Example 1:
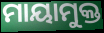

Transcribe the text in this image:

ମାୟାମୁକ୍ତ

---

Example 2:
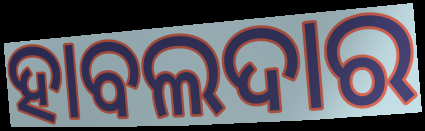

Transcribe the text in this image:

ହାବଲଦାର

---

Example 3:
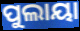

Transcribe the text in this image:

ପୁଲାୟା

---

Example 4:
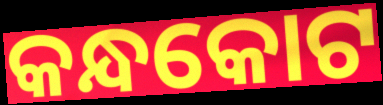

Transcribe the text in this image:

କନ୍ଧକୋଟ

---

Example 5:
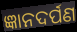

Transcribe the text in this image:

ଜ୍ଞାନଦର୍ପଣ